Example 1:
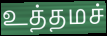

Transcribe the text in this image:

உத்தமச்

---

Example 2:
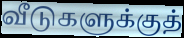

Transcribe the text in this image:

வீடுகளுக்குத்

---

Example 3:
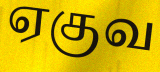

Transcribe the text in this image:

ஏகுவ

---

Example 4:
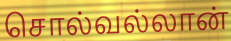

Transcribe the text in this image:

சொல்வல்லான்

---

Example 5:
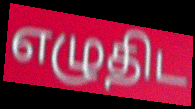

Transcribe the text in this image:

எழுதிட